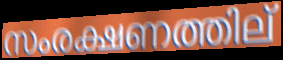
സംരക്ഷണത്തില്